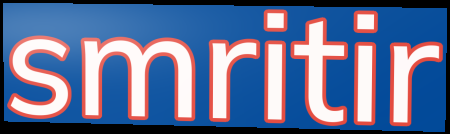
smritir